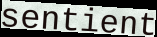
sentient